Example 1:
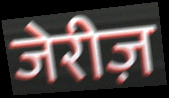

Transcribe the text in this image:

जेरीज़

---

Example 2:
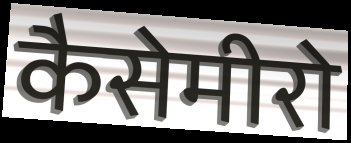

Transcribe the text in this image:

कैसेमीरो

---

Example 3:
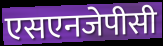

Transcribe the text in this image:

एसएनजेपीसी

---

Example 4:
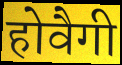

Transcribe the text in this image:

होवैगी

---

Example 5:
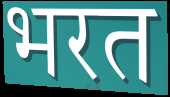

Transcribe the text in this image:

भरत